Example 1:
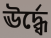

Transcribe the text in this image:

ঊর্দ্ধ্বে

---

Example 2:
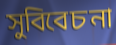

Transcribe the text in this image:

সুবিবেচনা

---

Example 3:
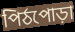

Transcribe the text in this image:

পিঠপোড়া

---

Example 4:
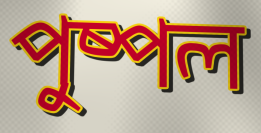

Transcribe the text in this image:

পুষ্পল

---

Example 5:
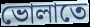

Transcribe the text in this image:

ভোলাতে